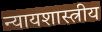
न्यायशास्त्रीय